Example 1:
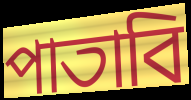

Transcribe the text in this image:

পাতাবি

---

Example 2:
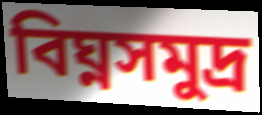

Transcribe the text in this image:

বিঘ্নসমুদ্র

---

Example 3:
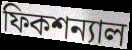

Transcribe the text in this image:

ফিকশন্যাল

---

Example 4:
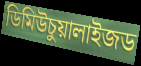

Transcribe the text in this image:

ডিমিউচুয়ালাইজড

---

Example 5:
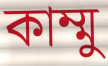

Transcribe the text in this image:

কাম্মু